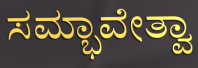
ಸಮ್ಭಾವೇತ್ವಾ